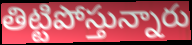
తిట్టిపోస్తున్నారు